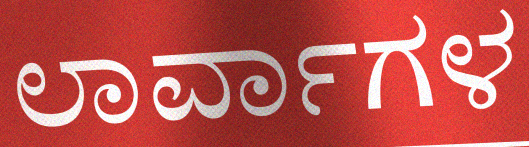
ಲಾರ್ವಾಗಳ